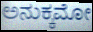
ಅನುಕ್ಕಮೋ